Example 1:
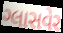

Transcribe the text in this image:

ગ્લાસવેર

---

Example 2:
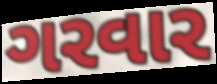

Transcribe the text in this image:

ગરવાર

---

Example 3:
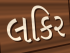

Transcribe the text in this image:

લકિર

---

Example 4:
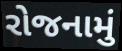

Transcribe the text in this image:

રોજનામું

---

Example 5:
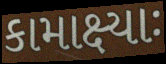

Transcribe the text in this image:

કામાક્ષ્યાઃ